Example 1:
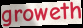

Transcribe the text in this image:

groweth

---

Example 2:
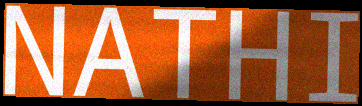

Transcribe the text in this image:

NATHI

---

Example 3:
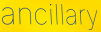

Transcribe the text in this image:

ancillary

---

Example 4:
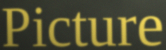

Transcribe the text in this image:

Picture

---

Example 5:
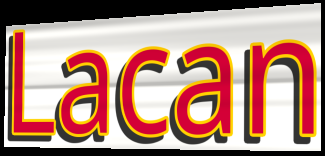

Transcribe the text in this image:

Lacan